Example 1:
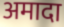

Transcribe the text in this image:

अमादा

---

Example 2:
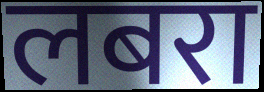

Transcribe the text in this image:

लबरा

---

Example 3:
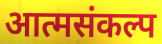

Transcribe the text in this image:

आत्मसंकल्प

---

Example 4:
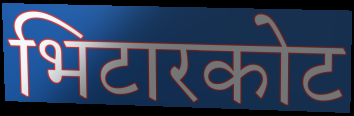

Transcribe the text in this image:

भिटारकोट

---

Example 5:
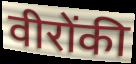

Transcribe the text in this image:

वीरोंकी